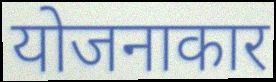
योजनाकार